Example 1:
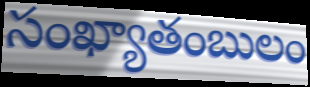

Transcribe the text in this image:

సంఖ్యాతంబులం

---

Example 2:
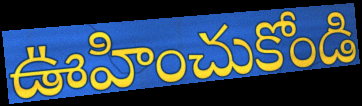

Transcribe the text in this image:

ఊహించుకోండి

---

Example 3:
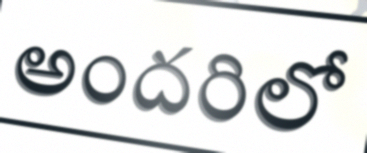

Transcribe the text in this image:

అందరిలో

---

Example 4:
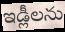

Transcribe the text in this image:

ఇడ్లీలను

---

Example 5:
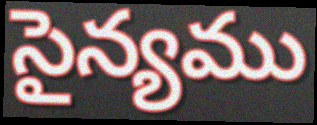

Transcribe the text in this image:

సైన్యము